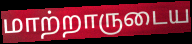
மாற்றாருடைய